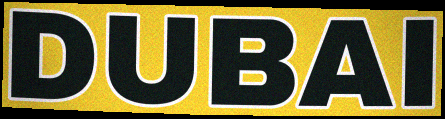
DUBAI